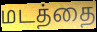
மடத்தை